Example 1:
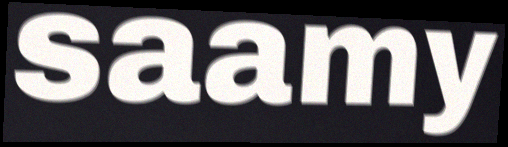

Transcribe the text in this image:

saamy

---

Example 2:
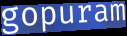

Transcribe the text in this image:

gopuram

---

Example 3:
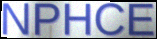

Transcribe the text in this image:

NPHCE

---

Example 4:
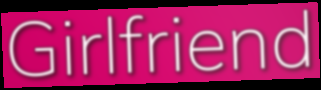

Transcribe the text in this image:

Girlfriend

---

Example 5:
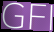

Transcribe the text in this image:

GFI